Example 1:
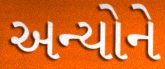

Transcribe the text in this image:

અન્યોને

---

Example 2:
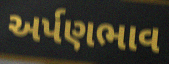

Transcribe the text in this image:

અર્પણભાવ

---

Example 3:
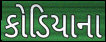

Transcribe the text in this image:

કોડિયાના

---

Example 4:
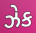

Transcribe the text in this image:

ઝેક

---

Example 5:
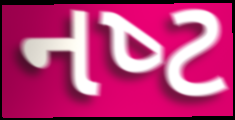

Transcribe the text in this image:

નષ્‍ટ